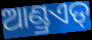
ଆଣ୍ଡ୍ରଏଡ୍